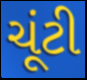
ચૂંટી